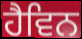
ਹੈਵਿਨ